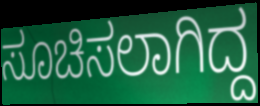
ಸೂಚಿಸಲಾಗಿದ್ದ